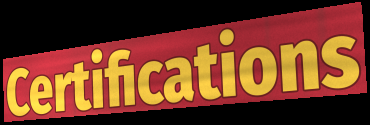
Certifications